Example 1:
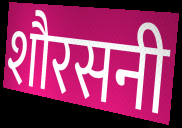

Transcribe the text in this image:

शौरसनी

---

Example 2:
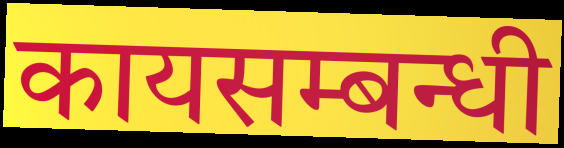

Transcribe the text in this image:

कायसम्बन्धी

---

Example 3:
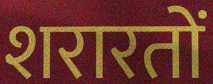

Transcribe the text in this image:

शरारतों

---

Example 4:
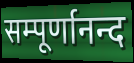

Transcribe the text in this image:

सम्पूर्णानन्द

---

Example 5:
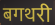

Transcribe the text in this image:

बगथरी